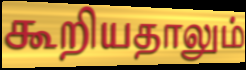
கூறியதாலும்